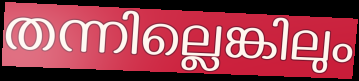
തന്നില്ലെങ്കിലും